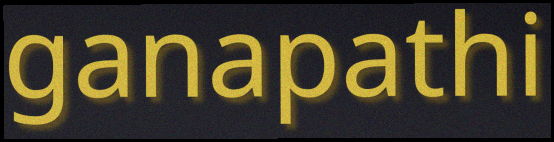
ganapathi